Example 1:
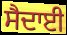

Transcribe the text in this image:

ਸੈਦਾਈ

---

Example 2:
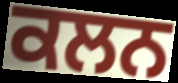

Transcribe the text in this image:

ਕਲਨ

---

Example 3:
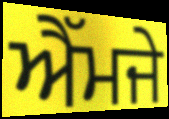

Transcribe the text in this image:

ਐੱਮਜੇ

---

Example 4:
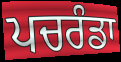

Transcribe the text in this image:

ਪਚਰੰਡਾ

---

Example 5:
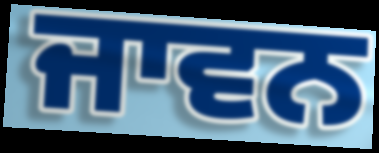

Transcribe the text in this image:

ਜਾਵਨ